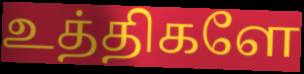
உத்திகளே